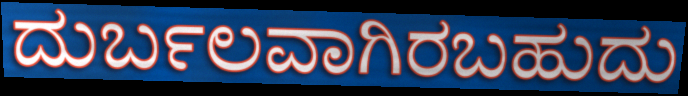
ದುರ್ಬಲವಾಗಿರಬಹುದು